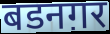
बडनग़र